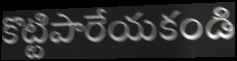
కొట్టిపారేయకండి